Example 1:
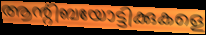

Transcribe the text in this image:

ആന്റിബയോട്ടിക്കുകളെ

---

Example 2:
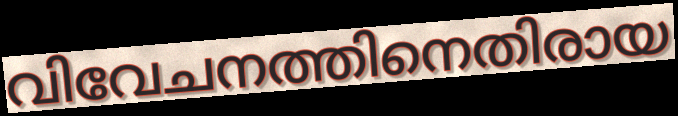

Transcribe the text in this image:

വിവേചനത്തിനെതിരായ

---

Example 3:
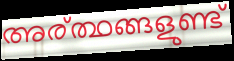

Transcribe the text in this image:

അര്ത്ഥങ്ങളുണ്ട്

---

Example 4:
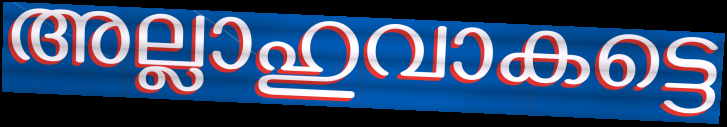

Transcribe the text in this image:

അല്ലാഹുവാകട്ടെ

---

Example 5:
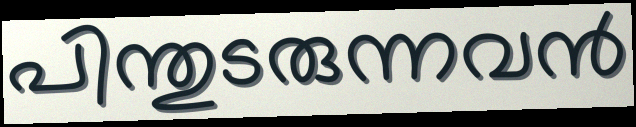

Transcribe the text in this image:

പിന്തുടരുന്നവൻ